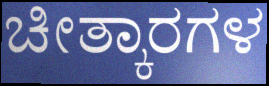
ಚೀತ್ಕಾರಗಳ